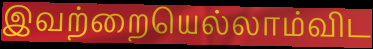
இவற்றையெல்லாம்விட